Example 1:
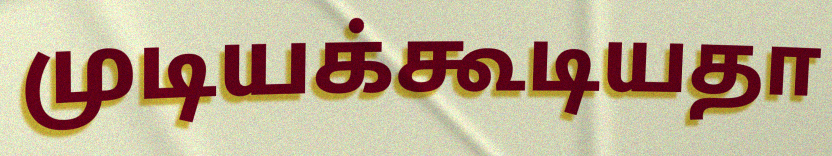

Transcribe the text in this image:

முடியக்கூடியதா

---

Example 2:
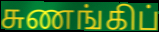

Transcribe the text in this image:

சுணங்கிப்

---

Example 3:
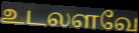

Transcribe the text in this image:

உடலளவே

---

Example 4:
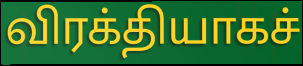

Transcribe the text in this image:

விரக்தியாகச்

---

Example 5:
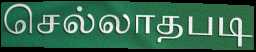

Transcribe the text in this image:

செல்லாதபடி